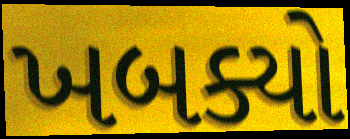
ખબક્યો